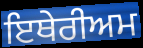
ਇਥੇਰੀਅਮ